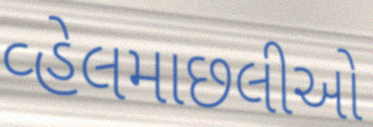
વ્હેલમાછલીઓ